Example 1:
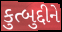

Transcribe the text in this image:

કુત્બુદ્દીને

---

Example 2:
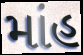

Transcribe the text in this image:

માંહ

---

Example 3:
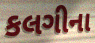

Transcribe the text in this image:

કલગીના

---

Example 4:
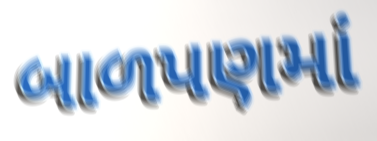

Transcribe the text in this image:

બાળપણમાં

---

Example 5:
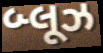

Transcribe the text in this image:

બ્લૂઝ